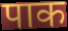
पाक